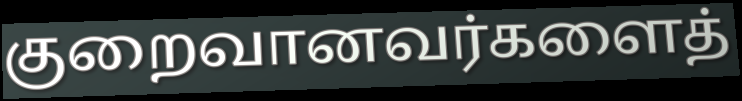
குறைவானவர்களைத்